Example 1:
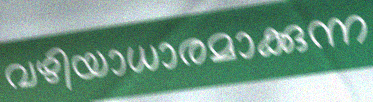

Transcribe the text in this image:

വഴിയാധാരമാക്കുന്ന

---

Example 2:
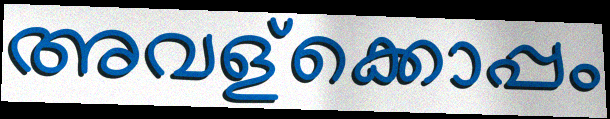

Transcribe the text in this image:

അവള്ക്കൊപ്പം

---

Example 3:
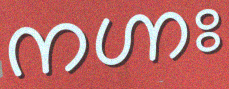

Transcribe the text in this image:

നഗ്നഃ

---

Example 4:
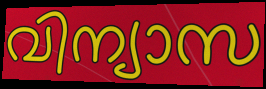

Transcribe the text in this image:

വിന്യാസ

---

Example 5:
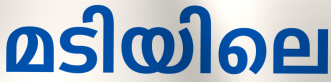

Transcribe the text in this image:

മടിയിലെ